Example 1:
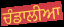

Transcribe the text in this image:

ਚੰਡਾਲੀਆ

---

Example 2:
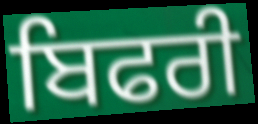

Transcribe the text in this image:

ਬਿਫਰੀ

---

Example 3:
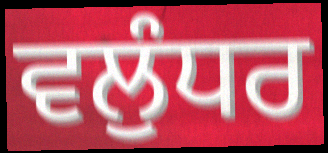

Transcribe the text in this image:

ਵਲੁੰਧਰ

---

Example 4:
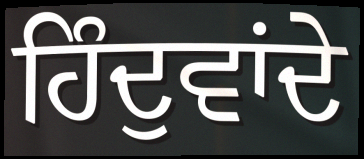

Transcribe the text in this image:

ਹਿੰਦੁਵਾਂਦੇ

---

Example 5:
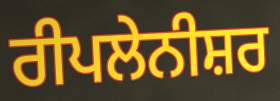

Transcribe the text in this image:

ਰੀਪਲੇਨੀਸ਼ਰ